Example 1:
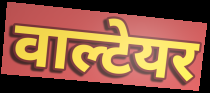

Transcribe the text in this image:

वाल्टेयर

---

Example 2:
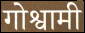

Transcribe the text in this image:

गोश्वामी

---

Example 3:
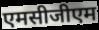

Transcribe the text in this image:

एमसीजीएम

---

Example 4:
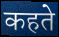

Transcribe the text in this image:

कहते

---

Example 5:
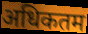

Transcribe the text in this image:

अधिकतम